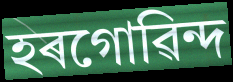
হৰগোৱিন্দ